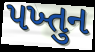
પખ્તુન